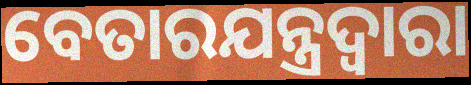
ବେତାରଯନ୍ତ୍ରଦ୍ୱାରା